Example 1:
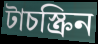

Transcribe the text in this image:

টাচস্ক্রিন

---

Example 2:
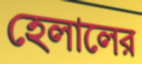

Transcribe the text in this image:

হেলালের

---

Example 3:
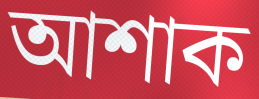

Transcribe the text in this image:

আশাক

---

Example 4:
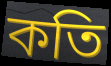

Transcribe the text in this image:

কতি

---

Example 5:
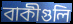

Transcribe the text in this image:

বাকীগুলি